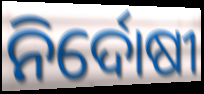
ନିର୍ଦୋଷୀ